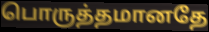
பொருத்தமானதே